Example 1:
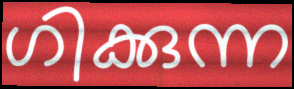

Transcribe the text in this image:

ഗിക്കുന്ന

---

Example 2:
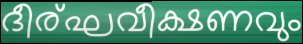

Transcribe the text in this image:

ദീര്ഘവീക്ഷണവും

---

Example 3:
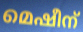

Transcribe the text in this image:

മെഷീന്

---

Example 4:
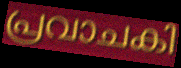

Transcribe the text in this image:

പ്രവാചകി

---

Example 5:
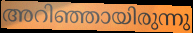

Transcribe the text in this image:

അറിഞ്ഞായിരുന്നു